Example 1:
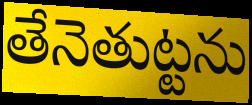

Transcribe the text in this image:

తేనెతుట్టను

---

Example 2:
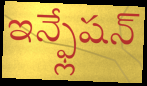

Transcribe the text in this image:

ఇన్ఫ్లేషన్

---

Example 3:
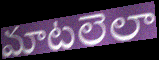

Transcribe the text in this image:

మాటలెలా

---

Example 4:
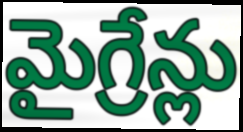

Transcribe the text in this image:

మైగ్రేన్లు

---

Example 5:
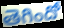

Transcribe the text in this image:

తెగిందో